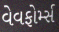
વેવફોર્મ્સ